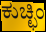
ಕುಚ್ಛಿಂ